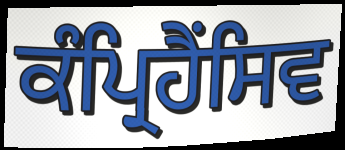
ਕੰਪ੍ਰਿਹੈਂਸਿਵ